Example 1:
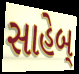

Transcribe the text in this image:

સાહેબ્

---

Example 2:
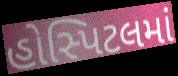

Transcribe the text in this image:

હોસ્પિટલમાં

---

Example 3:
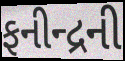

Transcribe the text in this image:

ફનીન્દ્રની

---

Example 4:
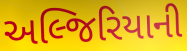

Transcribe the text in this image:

અલ્જિરિયાની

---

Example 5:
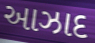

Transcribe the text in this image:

આઝાદ